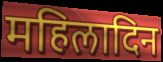
महिलादिन